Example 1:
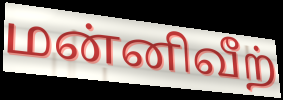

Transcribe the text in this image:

மன்னிவீற்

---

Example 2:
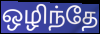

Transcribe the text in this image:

ஒழிந்தே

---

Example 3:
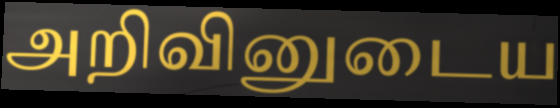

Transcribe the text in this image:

அறிவினுடைய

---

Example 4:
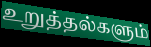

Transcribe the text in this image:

உறுத்தல்களும்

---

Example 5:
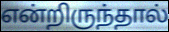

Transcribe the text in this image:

என்றிருந்தால்